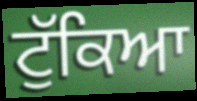
ਟੁੱਕਿਆ